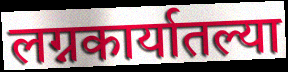
लग्नकार्यातल्या